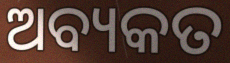
ଅବ୍ୟକତ